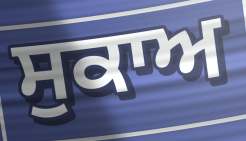
ਸੁਕਾਅ